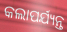
କଲାପର୍ଯ୍ୟନ୍ତ